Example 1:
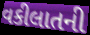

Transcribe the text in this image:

વકીલાતની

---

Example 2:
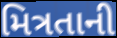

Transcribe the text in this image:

મિત્રતાની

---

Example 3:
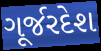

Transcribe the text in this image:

ગૂર્જરદેશ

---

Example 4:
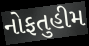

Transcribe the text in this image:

નોફતુહીમ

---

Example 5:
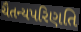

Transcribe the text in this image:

ચૈતન્યપરિણતિ